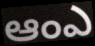
ఆంఎ